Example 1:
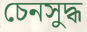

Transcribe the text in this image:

চেনসুদ্ধ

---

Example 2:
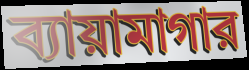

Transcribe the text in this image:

ব্যায়ামাগার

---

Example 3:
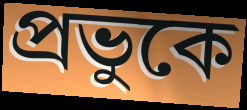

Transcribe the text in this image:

প্রভুকে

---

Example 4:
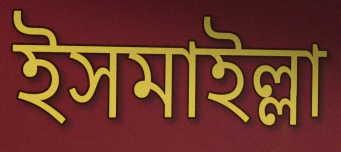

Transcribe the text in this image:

ইসমাইল্লা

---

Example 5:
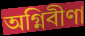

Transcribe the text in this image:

অগ্নিবীণা